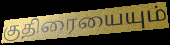
குதிரையையும்